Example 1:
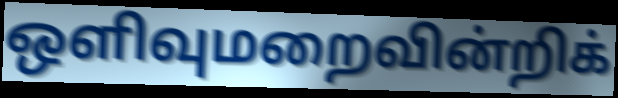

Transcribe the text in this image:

ஒளிவுமறைவின்றிக்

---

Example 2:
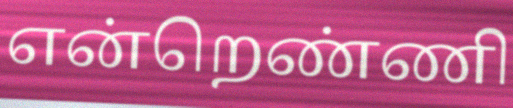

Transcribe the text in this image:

என்றெண்ணி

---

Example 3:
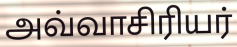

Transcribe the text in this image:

அவ்வாசிரியர்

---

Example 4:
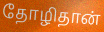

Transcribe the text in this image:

தோழிதான்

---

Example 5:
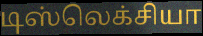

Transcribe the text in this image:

டிஸ்லெக்சியா